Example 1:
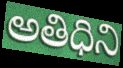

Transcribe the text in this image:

అతిధిని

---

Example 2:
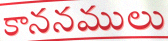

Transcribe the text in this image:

కాననములు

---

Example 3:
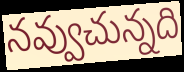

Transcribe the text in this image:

నవ్వుచున్నది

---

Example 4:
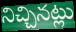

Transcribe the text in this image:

నిచ్చినట్లు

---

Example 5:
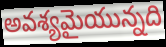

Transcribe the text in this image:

అవశ్యమైయున్నది